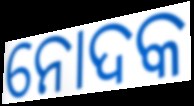
ନୋଦକ